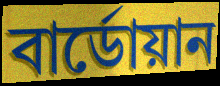
বার্ডোয়ান